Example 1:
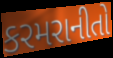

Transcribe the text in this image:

કરમરાનીતો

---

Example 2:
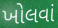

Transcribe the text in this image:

ખોલવાં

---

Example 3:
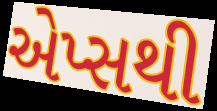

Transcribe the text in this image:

એપ્સથી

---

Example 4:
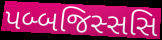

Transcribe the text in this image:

પબ્બજિસ્સસિ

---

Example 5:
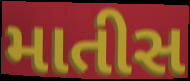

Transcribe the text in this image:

માતીસ